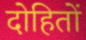
दोहितों